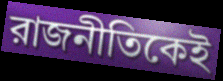
রাজনীতিকেই